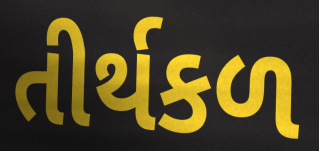
તીર્થકળ